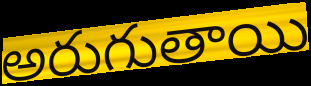
అరుగుతాయి